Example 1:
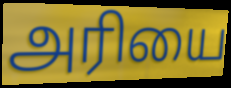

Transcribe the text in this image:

அரியை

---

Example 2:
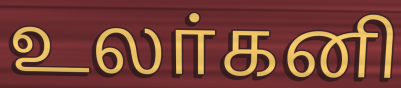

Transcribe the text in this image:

உலர்கனி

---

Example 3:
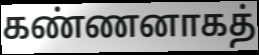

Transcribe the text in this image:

கண்ணனாகத்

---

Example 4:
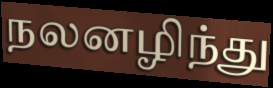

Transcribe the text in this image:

நலனழிந்து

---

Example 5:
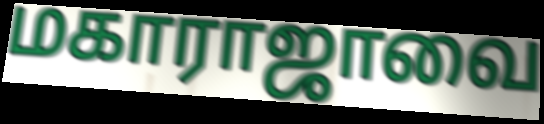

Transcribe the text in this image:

மகாராஜாவை